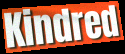
Kindred